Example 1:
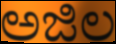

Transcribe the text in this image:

ಅಜಿಲ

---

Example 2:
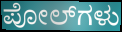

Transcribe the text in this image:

ಪೋಲ್‌ಗಳು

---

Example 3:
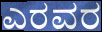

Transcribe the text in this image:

ಎರವರ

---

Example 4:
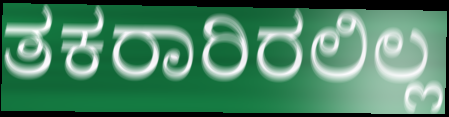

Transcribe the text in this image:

ತಕರಾರಿರಲಿಲ್ಲ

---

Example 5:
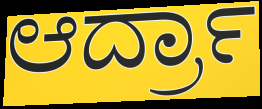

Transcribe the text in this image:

ಆರ್ದ್ರಾ